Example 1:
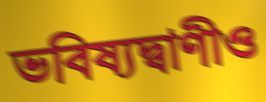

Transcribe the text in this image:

ভবিষ্যদ্বাণীও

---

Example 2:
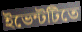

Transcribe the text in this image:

ইভেন্টটিতে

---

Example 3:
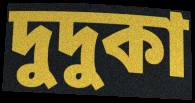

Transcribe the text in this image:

দুদুকা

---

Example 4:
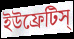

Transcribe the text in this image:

ইউফ্রেটিস্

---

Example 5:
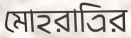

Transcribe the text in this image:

মোহরাত্রির